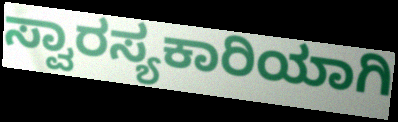
ಸ್ವಾರಸ್ಯಕಾರಿಯಾಗಿ